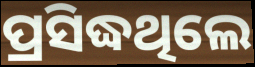
ପ୍ରସିଦ୍ଧଥିଲେ